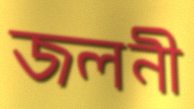
জলনী